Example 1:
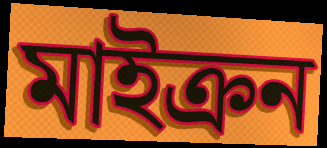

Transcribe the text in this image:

মাইক্রন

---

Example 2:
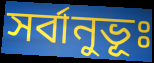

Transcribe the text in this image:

সর্বানুভূঃ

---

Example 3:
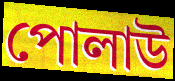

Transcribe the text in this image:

পোলাউ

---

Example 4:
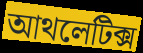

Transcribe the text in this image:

আথলেটিক্স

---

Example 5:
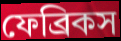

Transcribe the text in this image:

ফেব্রিকস